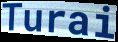
Turai